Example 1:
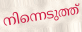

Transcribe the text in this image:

നിന്നെടുത്ത്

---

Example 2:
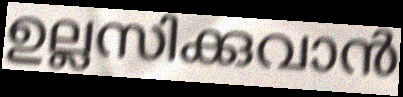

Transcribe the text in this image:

ഉല്ലസിക്കുവാൻ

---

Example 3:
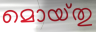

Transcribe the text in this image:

മൊയ്‌തു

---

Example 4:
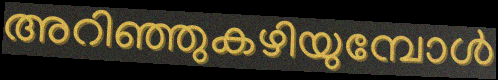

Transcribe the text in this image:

അറിഞ്ഞുകഴിയുമ്പോൾ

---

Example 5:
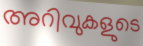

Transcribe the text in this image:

അറിവുകളുടെ